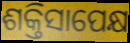
ଶକ୍ତିସାପେକ୍ଷ